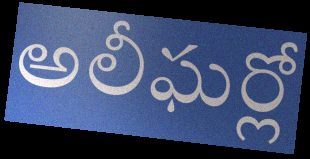
అలీఘర్లో